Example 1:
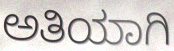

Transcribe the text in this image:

ಅತಿಯಾಗಿ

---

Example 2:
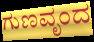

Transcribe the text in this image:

ಗುಣವೃಂದ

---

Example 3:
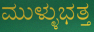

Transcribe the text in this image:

ಮುಳ್ಳುಭತ್ತ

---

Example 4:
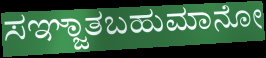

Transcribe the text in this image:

ಸಞ್ಜಾತಬಹುಮಾನೋ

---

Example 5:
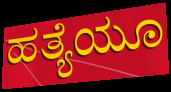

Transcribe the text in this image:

ಹತ್ಯೆಯೂ